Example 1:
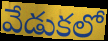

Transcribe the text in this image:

వేడుకలో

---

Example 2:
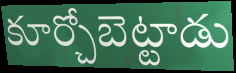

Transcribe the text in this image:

కూర్చోబెట్టాడు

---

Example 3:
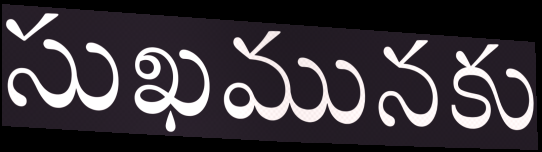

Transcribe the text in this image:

సుఖమునకు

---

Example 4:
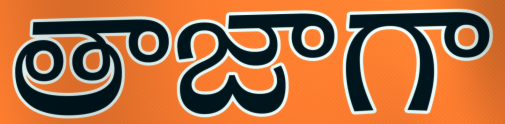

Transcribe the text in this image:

తాజాగా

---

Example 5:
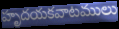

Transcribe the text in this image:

హృదయకవాటములు